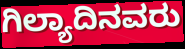
ಗಿಲ್ಯಾದಿನವರು